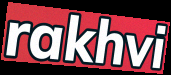
rakhvi